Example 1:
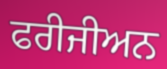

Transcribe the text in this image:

ਫਰੀਜੀਅਨ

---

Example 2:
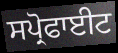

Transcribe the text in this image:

ਸਪ੍ਰੋਫਾਈਟ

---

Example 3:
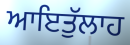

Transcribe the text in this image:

ਆਇਤੁੱਲਾਹ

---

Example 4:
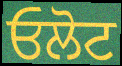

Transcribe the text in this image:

ਓਲੋਟ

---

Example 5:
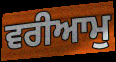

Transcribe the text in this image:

ਵਰੀਆਮੁ